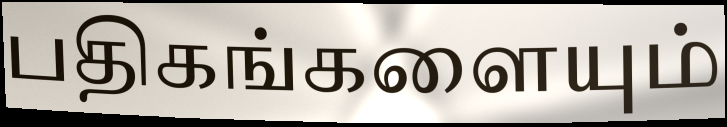
பதிகங்களையும்